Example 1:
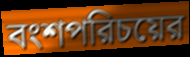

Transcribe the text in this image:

বংশপরিচয়ের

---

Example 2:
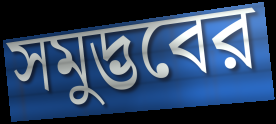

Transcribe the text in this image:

সমুদ্ভবের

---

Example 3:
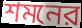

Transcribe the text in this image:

শমনের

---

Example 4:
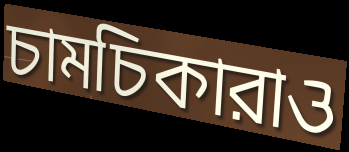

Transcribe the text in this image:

চামচিকারাও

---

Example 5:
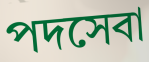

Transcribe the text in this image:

পদসেবা